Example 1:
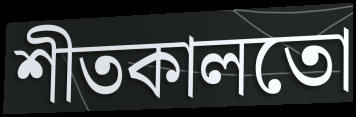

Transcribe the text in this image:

শীতকালতো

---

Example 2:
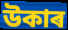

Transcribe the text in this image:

উকাৰ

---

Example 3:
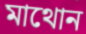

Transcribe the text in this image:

মাথোন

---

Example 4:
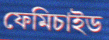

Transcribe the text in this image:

ফেমিচাইড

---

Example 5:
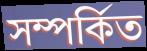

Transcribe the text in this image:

সম্পৰ্কিত